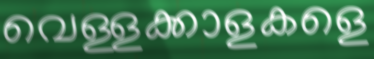
വെള്ളക്കാളകളെ